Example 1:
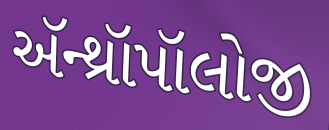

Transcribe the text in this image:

ઍન્થ્રૉપૉલોજી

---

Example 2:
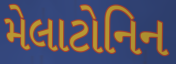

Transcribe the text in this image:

મેલાટોનિન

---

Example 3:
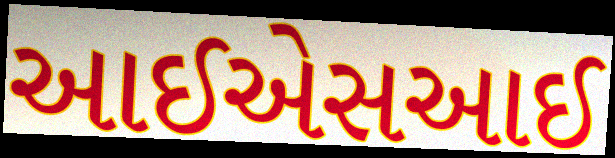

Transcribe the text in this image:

આઈએસઆઈ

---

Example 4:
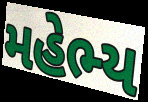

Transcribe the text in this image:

મહેભ્ય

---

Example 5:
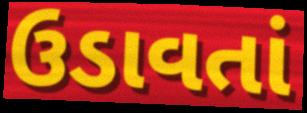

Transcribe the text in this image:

ઉડાવતાં